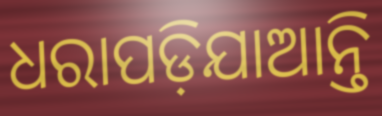
ଧରାପଡ଼ିଯାଆନ୍ତି